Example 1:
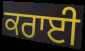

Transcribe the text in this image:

ਕਰਾਈ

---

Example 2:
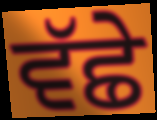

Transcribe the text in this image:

ਵੱਛੇ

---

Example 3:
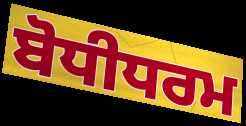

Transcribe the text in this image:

ਬੋਧੀਧਰਮ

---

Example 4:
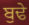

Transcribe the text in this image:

ਬੁਢੇ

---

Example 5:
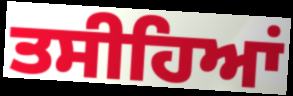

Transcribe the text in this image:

ਤਸੀਹਿਆਂ